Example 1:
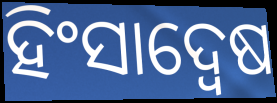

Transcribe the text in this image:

ହିଂସାଦ୍ୱେଷ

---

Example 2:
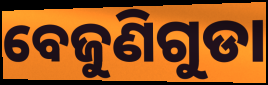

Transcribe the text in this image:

ବେଜୁଣିଗୁଡା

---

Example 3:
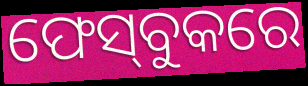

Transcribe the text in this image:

ଫେସ୍‌ବୁକରେ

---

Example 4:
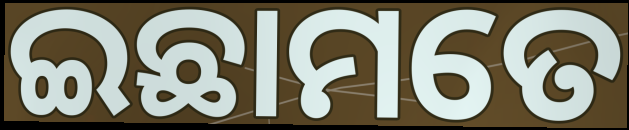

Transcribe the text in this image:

ଇଛାମତେ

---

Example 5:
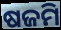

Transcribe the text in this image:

ଷଜମି